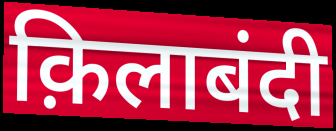
क़िलाबंदी